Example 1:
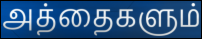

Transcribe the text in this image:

அத்தைகளும்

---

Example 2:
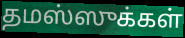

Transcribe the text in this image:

தமஸ்ஸுக்கள்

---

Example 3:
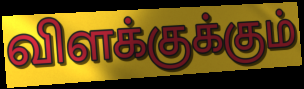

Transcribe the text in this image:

விளக்குக்கும்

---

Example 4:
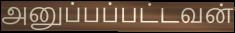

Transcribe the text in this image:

அனுப்பப்பட்டவன்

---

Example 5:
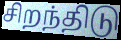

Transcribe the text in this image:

சிறந்திடு